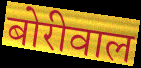
बोरीवाल